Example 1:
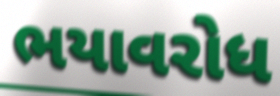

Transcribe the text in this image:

ભયાવરોધ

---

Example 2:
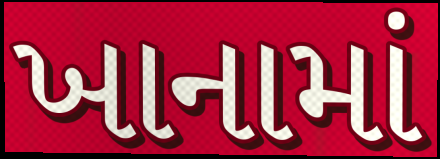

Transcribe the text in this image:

ખાનામાં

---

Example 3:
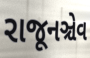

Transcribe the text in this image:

રાજૂનઞ્ચેવ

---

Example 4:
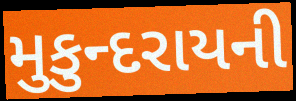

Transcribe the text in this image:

મુકુન્દરાયની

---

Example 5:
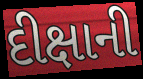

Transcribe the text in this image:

દીક્ષાની